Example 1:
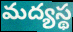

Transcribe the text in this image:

మద్యస్థ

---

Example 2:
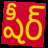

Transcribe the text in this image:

షీర్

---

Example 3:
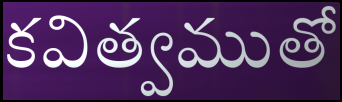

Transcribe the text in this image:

కవిత్వముతో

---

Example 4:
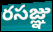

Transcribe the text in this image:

రసజ్ఞు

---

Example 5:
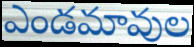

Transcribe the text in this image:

ఎండమావుల